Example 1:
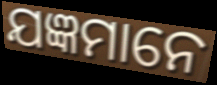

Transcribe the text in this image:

ଯଜ୍ଞମାନେ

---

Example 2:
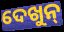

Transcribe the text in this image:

ଦେଖୁନ୍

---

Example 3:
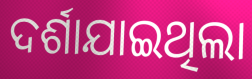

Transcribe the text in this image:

ଦର୍ଶାଯାଇଥିଲା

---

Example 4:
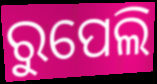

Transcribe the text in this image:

ରୁପେଲି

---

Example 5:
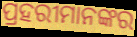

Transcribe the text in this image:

ପ୍ରହରୀମାନଙ୍କର